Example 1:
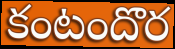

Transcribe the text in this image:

కంటందొర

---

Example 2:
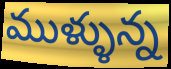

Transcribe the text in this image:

ముళ్ళున్న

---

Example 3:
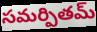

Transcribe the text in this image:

సమర్పితమ్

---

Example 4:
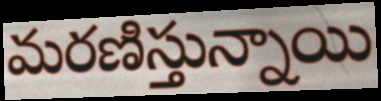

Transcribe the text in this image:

మరణిస్తున్నాయి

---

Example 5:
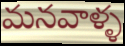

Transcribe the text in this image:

మనవాళ్ళ